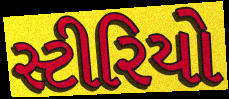
સ્ટીરિયો